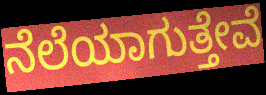
ನೆಲೆಯಾಗುತ್ತೇವೆ